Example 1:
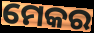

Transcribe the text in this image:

ମେକର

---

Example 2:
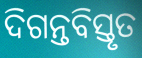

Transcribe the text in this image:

ଦିଗନ୍ତବିସ୍ତୃତ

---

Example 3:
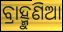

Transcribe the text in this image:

ବ୍ରାହ୍ମୁଣିଆ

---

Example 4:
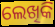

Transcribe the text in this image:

ଲେଖିକି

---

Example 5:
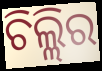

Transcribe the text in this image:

ଚିଲ୍ଲିର